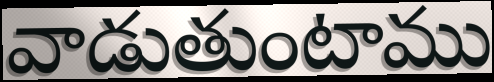
వాడుతుంటాము